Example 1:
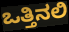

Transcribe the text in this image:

ಒತ್ತಿನಲಿ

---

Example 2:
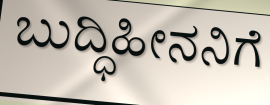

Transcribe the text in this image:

ಬುದ್ಧಿಹೀನನಿಗೆ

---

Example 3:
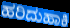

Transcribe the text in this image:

ಹರಿದುಹಾಕಿ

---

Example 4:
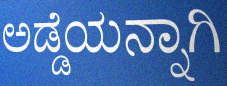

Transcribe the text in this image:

ಅಡ್ಡೆಯನ್ನಾಗಿ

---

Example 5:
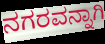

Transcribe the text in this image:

ನಗರವನ್ನಾಗಿ